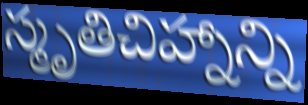
స్మృతిచిహ్నాన్ని